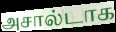
அசால்டாக